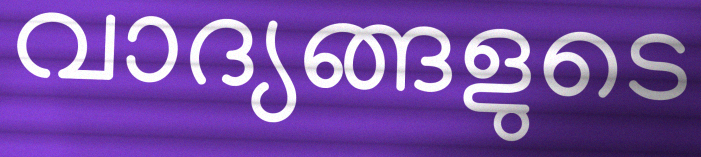
വാദ്യങ്ങളുടെ